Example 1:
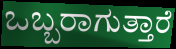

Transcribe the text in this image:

ಒಬ್ಬರಾಗುತ್ತಾರೆ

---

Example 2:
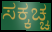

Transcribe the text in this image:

ಸಕ್ಕಚ್ಚ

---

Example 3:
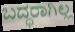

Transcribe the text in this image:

ಬದ್ಧರಾಗಿಲ್ಲ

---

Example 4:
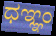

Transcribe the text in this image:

ಧಞ್ಞಂ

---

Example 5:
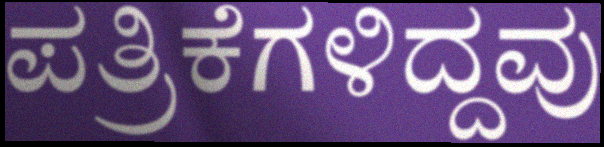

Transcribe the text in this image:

ಪತ್ರಿಕೆಗಳಿದ್ದವು